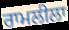
ਰਾਮਲੀਲਾ